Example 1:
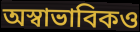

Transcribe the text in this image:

অস্বাভাবিকও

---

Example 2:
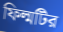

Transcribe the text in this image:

ফিল্মটির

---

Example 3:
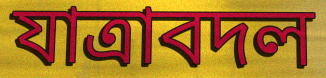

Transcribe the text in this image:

যাত্রাবদল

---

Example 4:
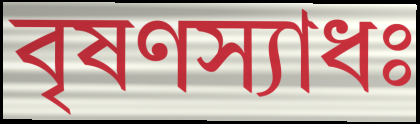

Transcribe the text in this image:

বৃষণস্যাধঃ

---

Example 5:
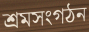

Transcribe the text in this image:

শ্রমসংগঠন